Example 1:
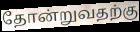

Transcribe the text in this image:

தோன்றுவதற்கு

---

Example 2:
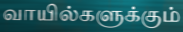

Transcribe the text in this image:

வாயில்களுக்கும்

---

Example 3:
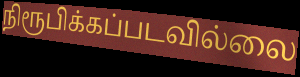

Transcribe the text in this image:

நிரூபிக்கப்படவில்லை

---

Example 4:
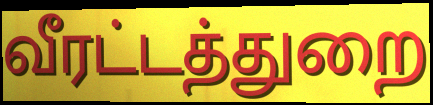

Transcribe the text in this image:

வீரட்டத்துறை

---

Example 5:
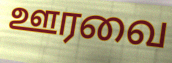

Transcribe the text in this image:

ஊரவை